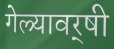
गेल्यावर्षी